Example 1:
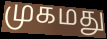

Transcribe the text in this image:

முகமது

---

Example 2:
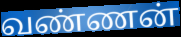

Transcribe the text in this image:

வண்ணன்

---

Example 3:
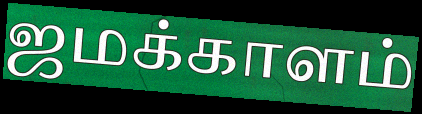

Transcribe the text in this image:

ஜமக்காளம்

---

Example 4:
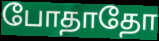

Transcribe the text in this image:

போதாதோ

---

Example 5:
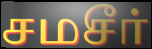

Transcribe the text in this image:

சமசீர்